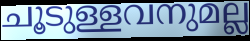
ചൂടുള്ളവനുമല്ല